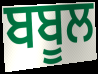
ਬਬੂਲ